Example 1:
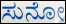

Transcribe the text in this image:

ಸುನೋ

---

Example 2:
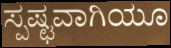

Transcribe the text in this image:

ಸ್ಪಷ್ಟವಾಗಿಯೂ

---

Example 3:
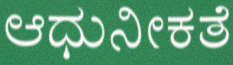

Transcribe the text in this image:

ಆಧುನೀಕತೆ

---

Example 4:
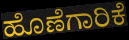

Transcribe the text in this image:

ಹೊಣೆಗಾರಿಕೆ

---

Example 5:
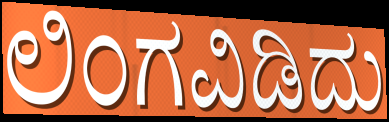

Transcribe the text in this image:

ಲಿಂಗವಿಡಿದು